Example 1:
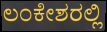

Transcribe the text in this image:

ಲಂಕೇಶರಲ್ಲಿ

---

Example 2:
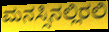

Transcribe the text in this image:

ಮನಸ್ಸಿನಲ್ಲಿರಲಿ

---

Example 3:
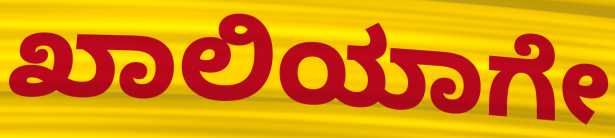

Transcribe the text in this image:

ಖಾಲಿಯಾಗೇ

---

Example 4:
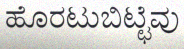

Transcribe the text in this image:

ಹೊರಟುಬಿಟ್ಟೆವು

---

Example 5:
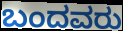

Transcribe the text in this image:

ಬಂದವರು